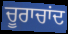
ਚੂਰਾਚਾਂਦ